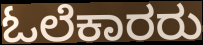
ಓಲೆಕಾರರು